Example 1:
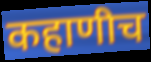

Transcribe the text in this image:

कहाणीच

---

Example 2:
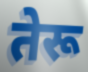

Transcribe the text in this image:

तेरू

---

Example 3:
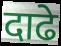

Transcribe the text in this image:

दाढे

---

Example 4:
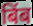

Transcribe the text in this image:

बिंब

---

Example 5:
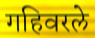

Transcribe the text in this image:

गहिवरले